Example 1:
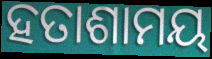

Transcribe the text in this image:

ହତାଶାମୟ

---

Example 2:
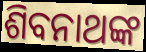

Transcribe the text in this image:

ଶିବନାଥଙ୍କ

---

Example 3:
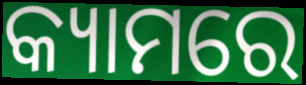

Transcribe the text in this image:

କ୍ୟାମରେ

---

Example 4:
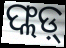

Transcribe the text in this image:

ଫ୍ଲଡ଼୍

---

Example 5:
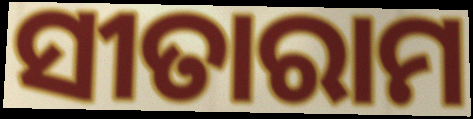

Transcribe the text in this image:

ସୀତାରାମ